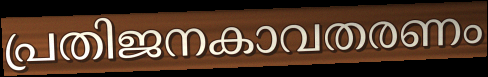
പ്രതിജനകാവതരണം